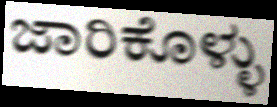
ಜಾರಿಕೊಳ್ಳು